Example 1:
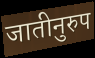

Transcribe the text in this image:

जातीनुरुप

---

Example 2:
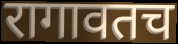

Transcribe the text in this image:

रागावतच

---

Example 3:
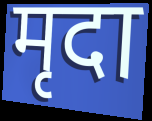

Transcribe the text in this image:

मृदा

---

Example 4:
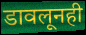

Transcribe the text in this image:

डावलूनही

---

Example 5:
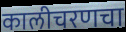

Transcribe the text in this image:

कालीचरणचा